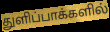
துளிப்பாக்களில்